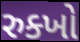
રુક્ખો